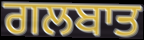
ਗਲਬਾਤ